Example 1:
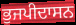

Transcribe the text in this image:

ਭੁਜਪੀਦਾਸਨ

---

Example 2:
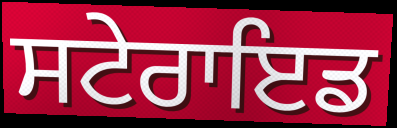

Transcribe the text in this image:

ਸਟੇਰਾਇਡ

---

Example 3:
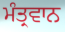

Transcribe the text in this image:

ਮੰਤ੍ਰਵਾਨ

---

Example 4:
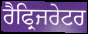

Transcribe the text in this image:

ਰੈਫ੍ਰਿਜਰੇਟਰ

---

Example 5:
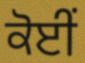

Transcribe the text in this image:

ਕੋਈਂ